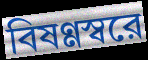
বিষণ্ণস্বরে